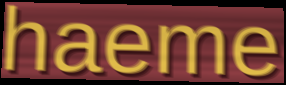
haeme